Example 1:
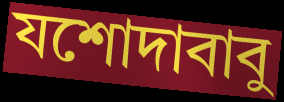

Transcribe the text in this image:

যশোদাবাবু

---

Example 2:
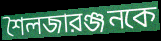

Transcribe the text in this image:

শৈলজারঞ্জনকে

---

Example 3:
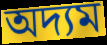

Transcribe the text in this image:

অদ্যম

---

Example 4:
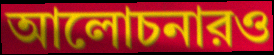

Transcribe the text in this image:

আলোচনারও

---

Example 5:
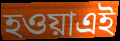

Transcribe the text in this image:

হওয়াএই